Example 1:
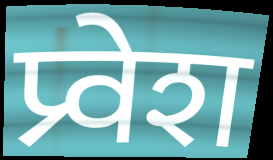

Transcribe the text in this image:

प्र्वेश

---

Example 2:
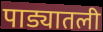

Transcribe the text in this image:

पाड्यातली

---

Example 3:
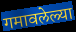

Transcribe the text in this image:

गमावलेल्या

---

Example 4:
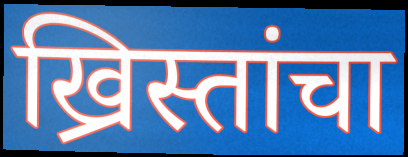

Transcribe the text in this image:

ख्रिस्तांचा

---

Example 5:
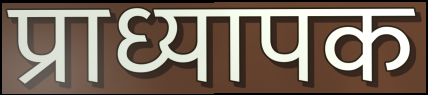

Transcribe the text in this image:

प्राध्यापक